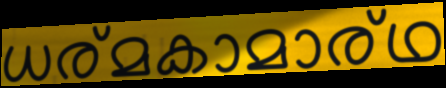
ധര്മകാമാര്ഥ